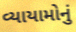
વ્યાયામોનું